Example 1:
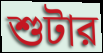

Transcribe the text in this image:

শুটার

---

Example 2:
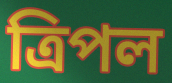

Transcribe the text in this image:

ত্রিপল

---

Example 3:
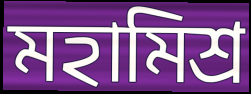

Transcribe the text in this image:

মহামিশ্র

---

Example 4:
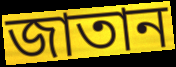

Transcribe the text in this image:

জাতান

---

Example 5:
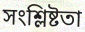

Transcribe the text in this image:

সংশ্লিষ্টতা